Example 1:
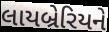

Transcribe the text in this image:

લાયબ્રેરિયને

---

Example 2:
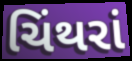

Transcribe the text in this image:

ચિંથરાં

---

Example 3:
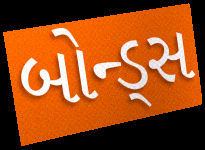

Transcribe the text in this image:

બોન્ડ્સ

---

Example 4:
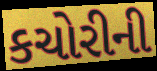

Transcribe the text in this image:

કચોરીની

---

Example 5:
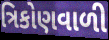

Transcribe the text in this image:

ત્રિકોણવાળી